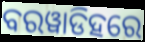
ବରୱାଡିହରେ